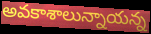
అవకాశాలున్నాయన్న